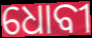
ଧୋବୀ